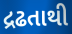
દ્રઢતાથી